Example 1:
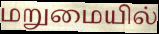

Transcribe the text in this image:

மறுமையில்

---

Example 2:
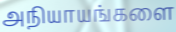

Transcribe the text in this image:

அநியாயங்களை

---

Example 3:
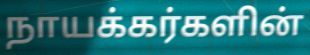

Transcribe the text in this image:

நாயக்கர்களின்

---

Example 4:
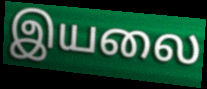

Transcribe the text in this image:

இயலை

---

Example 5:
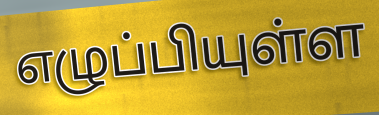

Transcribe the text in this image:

எழுப்பியுள்ள